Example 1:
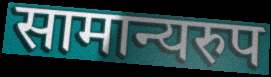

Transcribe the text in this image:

सामान्यरुप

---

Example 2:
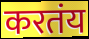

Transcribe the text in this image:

करतंय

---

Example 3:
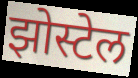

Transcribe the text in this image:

झोस्टेल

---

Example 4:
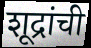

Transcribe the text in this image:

शूद्रांची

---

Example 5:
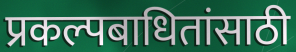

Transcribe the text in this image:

प्रकल्पबाधितांसाठी